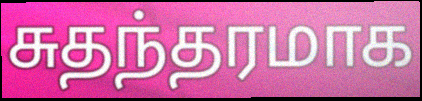
சுதந்தரமாக